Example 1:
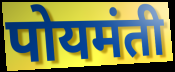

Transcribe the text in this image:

पोयमंती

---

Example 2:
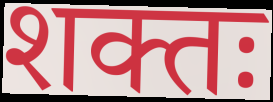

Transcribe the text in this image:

शक्तः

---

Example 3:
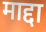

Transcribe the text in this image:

माद्दा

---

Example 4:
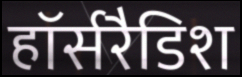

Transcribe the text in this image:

हॉर्सरैडिश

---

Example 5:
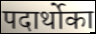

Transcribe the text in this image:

पदार्थोका